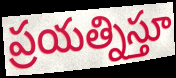
ప్రయత్నిస్తూ